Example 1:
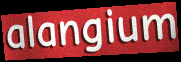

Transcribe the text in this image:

alangium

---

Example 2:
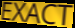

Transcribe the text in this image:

EXACT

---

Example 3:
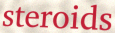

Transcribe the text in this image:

steroids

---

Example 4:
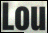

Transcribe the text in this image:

Lou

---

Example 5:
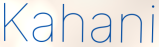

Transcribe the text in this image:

Kahani